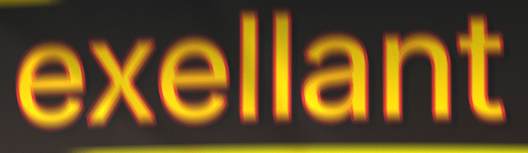
exellant